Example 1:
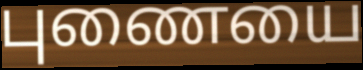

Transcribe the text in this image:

புணையை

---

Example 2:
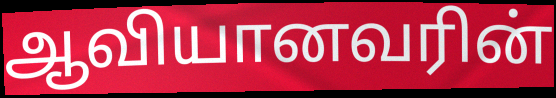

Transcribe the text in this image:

ஆவியானவரின்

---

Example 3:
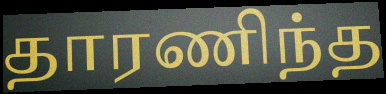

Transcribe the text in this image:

தாரணிந்த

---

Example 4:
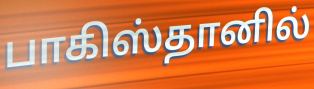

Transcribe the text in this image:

பாகிஸ்தானில்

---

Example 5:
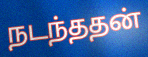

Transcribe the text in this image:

நடந்ததன்